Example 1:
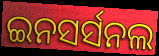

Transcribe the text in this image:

ଇନସର୍ସନଲ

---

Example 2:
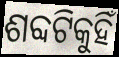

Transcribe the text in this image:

ଶବ୍ଦଟିକୁହିଁ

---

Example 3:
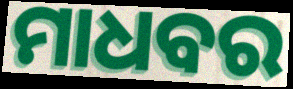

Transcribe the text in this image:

ମାଧବର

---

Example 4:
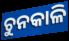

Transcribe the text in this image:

ଚୁନକାଳି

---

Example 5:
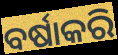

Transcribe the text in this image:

ବର୍ଷାକରି